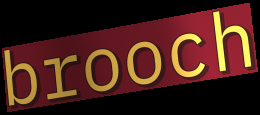
brooch